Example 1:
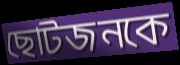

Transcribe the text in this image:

ছোটজনকে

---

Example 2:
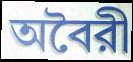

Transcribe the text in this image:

অবৈরী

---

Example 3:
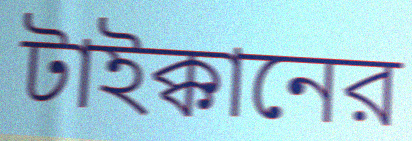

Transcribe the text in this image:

টাইক্কানের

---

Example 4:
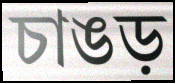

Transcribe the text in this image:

চাঙড়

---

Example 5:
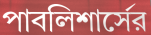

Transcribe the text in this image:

পাবলিশার্সের